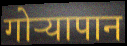
गोऱ्यापान